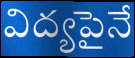
విద్యపైనే